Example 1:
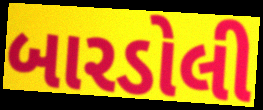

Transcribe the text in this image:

બારડોલી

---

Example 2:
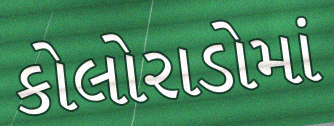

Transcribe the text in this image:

કોલોરાડોમાં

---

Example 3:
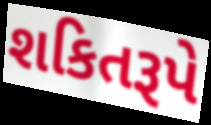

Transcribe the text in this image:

શકિતરૂપે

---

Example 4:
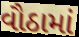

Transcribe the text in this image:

વૌઠામાં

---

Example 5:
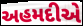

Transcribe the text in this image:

અહમદીએ